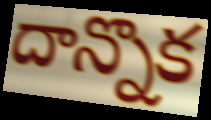
దాన్నొక